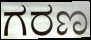
ಗರಣ